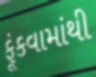
ફૂંકવામાંથી